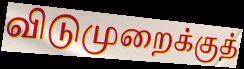
விடுமுறைக்குத்